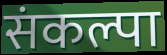
संकल्पा